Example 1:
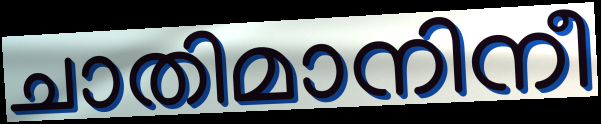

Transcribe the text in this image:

ചാതിമാനിനീ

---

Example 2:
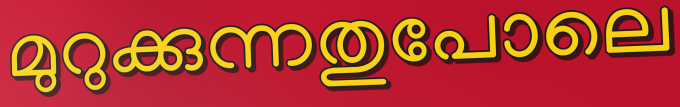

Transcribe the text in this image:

മുറുക്കുന്നതുപോലെ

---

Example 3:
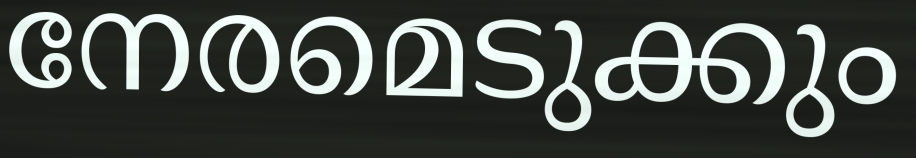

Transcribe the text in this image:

നേരമെടുക്കും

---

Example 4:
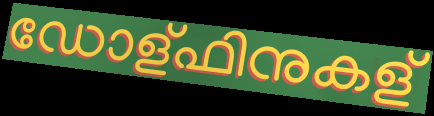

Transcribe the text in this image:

ഡോള്ഫിനുകള്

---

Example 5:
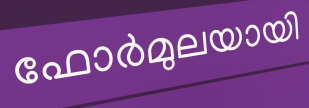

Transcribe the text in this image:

ഫോർമുലയായി